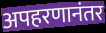
अपहरणानंतर